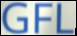
GFL